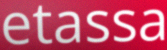
etassa